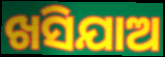
ଖସିଯାଅ